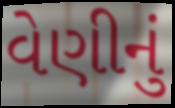
વેણીનું